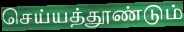
செய்யத்தூண்டும்